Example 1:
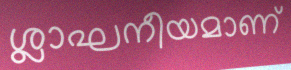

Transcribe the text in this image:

ശ്ലാഘനീയമാണ്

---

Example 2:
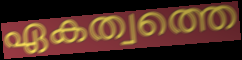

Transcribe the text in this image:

ഏകത്വത്തെ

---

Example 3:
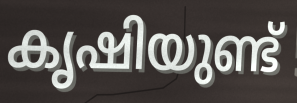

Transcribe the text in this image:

കൃഷിയുണ്ട്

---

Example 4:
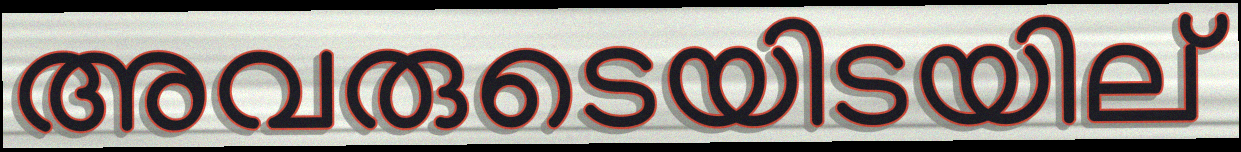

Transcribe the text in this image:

അവരുടെയിടയില്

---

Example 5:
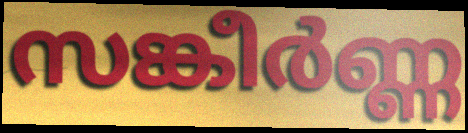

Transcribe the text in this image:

സങ്കീർണ്ണ